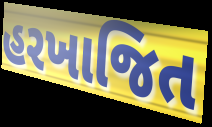
હરખાજિત